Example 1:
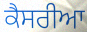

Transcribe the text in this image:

ਕੈਸਰੀਆ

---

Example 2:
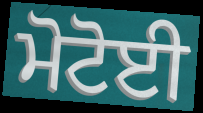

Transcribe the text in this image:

ਮੋਟੋਈ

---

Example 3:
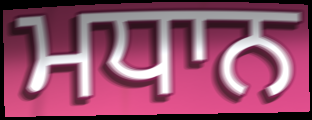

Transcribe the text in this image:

ਮਧਾਨ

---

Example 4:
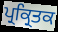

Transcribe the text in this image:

ਪ੍ਰਕ੍ਰਿਤਕ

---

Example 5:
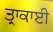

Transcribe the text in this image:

ਤ੍ਰਾਕਾਈ